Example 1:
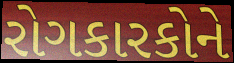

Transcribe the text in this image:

રોગકારકોને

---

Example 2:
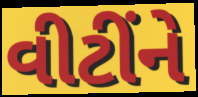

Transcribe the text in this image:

વીટીંને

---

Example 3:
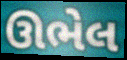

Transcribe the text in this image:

ઊભેલ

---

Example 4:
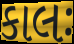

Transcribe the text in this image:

કાલઃ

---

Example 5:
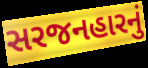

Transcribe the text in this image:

સરજનહારનું